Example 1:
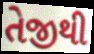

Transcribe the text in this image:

તેજીથી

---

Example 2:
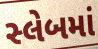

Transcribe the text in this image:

સ્લેબમાં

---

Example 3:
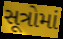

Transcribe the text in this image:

સૂત્રોમાં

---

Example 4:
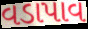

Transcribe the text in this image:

વડાપાવ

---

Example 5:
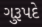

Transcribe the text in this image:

ગુરૂપદે